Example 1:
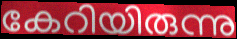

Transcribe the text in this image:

കേറിയിരുന്നു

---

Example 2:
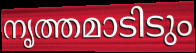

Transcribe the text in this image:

നൃത്തമാടിടും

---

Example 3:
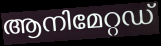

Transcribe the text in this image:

ആനിമേറ്റഡ്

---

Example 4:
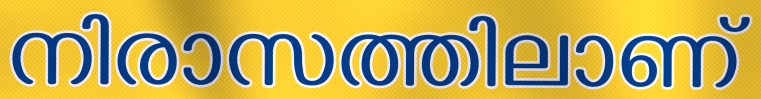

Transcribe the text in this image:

നിരാസത്തിലാണ്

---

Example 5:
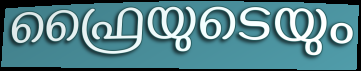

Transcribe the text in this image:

ഫ്രൈയുടെയും